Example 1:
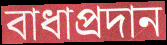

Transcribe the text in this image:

বাধাপ্রদান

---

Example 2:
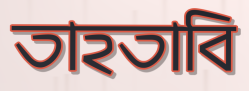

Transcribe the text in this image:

তাহতাবি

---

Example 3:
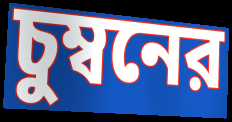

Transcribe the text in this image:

চুম্বনের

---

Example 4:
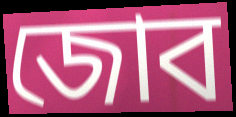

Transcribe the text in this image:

জোব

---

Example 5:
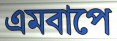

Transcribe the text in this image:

এমবাপে